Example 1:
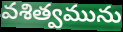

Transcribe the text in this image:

వశిత్వమును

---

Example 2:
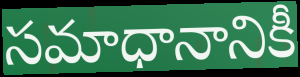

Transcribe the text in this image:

సమాధానానికీ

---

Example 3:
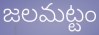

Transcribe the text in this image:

జలమట్టం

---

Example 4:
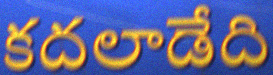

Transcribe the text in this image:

కదలాడేది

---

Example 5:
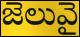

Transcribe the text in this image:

జెలువై